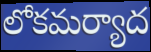
లోకమర్యాద